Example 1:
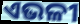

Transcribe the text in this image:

ଏଭଳୀ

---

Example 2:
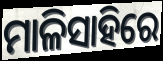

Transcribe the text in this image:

ମାଳିସାହିରେ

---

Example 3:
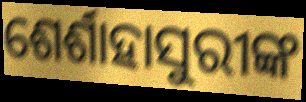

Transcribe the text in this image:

ଶେର୍ଶାହାସୁରୀଙ୍କ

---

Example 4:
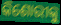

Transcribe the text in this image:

କିଶୋରୀକୁ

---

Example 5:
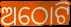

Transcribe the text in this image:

ଅଠୋଟି